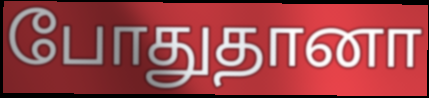
போதுதானா